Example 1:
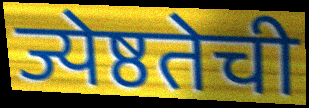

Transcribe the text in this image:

ज्येष्ठतेची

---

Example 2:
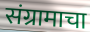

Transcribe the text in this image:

संग्रामाचा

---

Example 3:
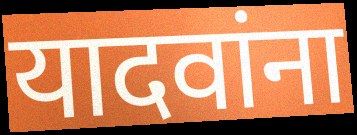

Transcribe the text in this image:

यादवांना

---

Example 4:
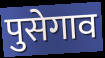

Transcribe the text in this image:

पुसेगाव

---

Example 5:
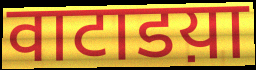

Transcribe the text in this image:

वाटाडय़ा